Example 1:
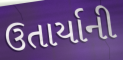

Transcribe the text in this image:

ઉતાર્યાની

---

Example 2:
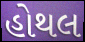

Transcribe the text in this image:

હોથલ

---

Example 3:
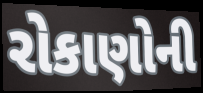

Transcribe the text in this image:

રોકાણોની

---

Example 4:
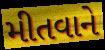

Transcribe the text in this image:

મીતવાને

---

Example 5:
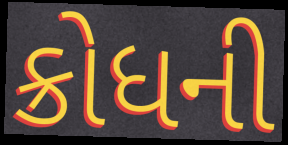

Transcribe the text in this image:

ક્રોધની